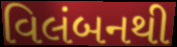
વિલંબનથી